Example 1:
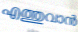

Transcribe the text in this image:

എത്തുവാൻ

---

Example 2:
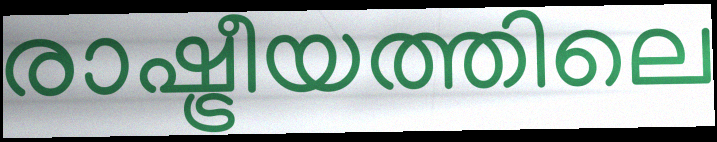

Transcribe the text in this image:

രാഷ്ട്രീയത്തിലെ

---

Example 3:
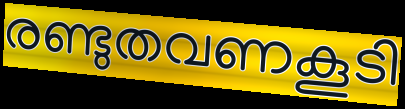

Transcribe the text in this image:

രണ്ടുതവണകൂടി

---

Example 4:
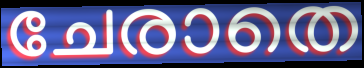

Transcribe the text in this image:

ചേരാതെ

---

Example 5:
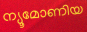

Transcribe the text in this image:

ന്യൂമോണിയ